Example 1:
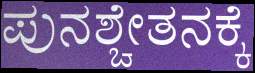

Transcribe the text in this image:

ಪುನಶ್ಚೇತನಕ್ಕೆ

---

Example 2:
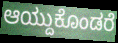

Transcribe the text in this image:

ಆಯ್ದುಕೊಂಡರೆ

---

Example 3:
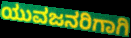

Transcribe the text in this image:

ಯುವಜನರಿಗಾಗಿ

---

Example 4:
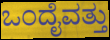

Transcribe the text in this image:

ಒಂದೈವತ್ತು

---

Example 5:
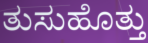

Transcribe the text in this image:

ತುಸುಹೊತ್ತು